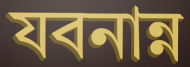
যবনান্ন